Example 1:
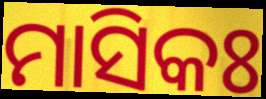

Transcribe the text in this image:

ମାସିକଃ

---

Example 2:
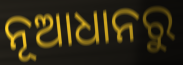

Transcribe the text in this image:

ନୂଆଧାନରୁ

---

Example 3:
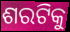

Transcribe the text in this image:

ଶରଟିକୁ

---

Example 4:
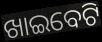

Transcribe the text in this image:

ଖାଇବେଟି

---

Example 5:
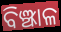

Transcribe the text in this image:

ବିଞ୍ଝାଳ